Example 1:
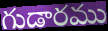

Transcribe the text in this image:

గుడారము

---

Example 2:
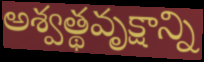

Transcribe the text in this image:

అశ్వత్థవృక్షాన్ని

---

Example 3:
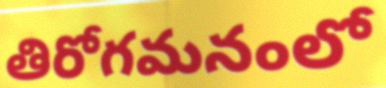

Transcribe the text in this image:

తిరోగమనంలో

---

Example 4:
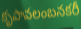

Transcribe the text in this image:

కృపావలంబనకరీ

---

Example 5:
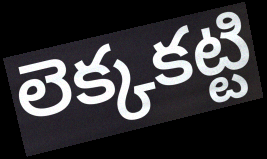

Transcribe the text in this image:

లెక్కకట్టి